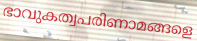
ഭാവുകത്വപരിണാമങ്ങളെ